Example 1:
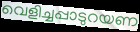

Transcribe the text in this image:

വെളിച്ചപ്പാടുറയണ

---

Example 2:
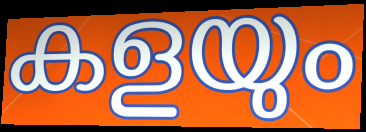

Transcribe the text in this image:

കളയും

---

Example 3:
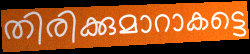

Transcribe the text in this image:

തിരിക്കുമാറാകട്ടെ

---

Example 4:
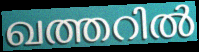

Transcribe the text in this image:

ഖത്തറിൽ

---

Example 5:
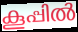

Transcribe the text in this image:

കൂപ്പിൽ